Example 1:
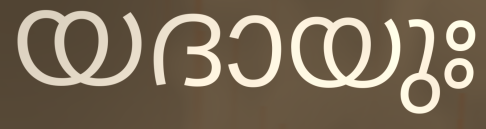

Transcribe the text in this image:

യദായുഃ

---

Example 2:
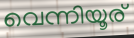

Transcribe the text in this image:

വെന്നിയൂര്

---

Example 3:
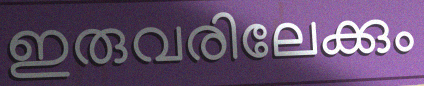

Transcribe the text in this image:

ഇരുവരിലേക്കും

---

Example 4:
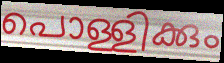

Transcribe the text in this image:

പൊള്ളിക്കും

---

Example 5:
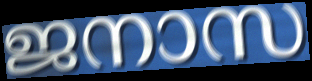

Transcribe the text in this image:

ജനാസ